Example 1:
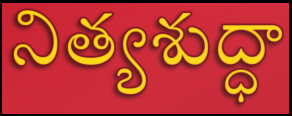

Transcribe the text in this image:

నిత్యశుద్ధా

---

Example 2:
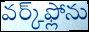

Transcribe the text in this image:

వర్క్‌ఫ్లోను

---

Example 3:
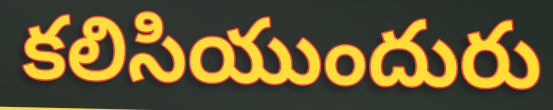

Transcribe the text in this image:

కలిసియుందురు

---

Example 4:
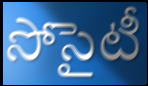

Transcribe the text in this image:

సోసైటీ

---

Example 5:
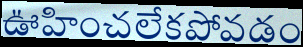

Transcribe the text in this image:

ఊహించలేకపోవడం